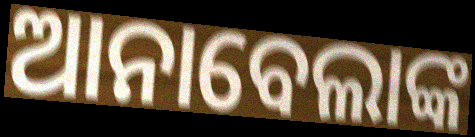
ଆନାବେଲାଙ୍କ